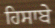
ਹਿਸਾਬੇ